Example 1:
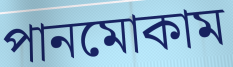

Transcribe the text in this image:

পানমোকাম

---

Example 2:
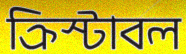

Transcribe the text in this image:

ক্রিস্টাবল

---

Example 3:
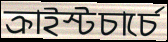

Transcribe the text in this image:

ক্রাইস্টচার্চে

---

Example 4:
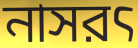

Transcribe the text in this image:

নাসরৎ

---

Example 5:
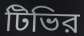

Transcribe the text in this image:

টিভির